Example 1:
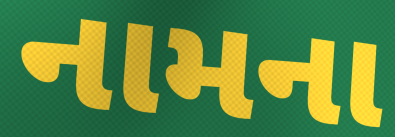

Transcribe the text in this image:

નામના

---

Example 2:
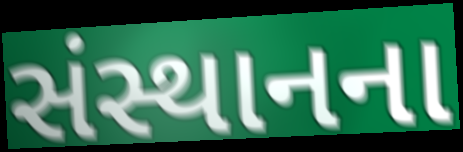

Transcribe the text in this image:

સંસ્થાનના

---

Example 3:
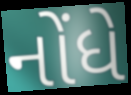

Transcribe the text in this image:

નોંધે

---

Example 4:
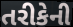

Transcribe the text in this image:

તરીકેની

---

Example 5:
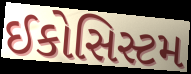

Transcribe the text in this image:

ઈકોસિસ્ટમ